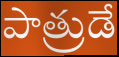
పాత్రుడే